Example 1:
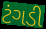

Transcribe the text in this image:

ટંગડી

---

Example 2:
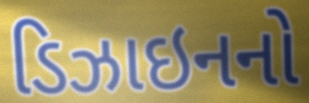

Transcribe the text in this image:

ડિઝાઇનનો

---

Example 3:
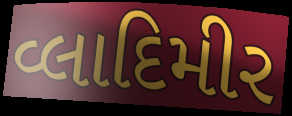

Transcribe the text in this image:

વ્લાદિમીર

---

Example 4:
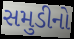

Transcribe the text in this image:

સમુડીનો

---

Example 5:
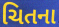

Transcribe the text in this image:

ચિતના